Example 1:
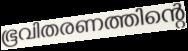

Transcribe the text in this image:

ഭൂവിതരണത്തിന്റെ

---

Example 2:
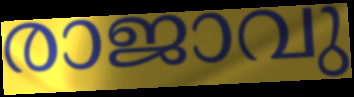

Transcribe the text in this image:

രാജാവു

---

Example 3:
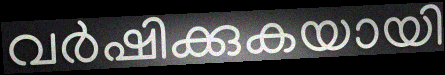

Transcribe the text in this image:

വർഷിക്കുകയായി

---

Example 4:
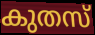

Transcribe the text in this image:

കുതസ്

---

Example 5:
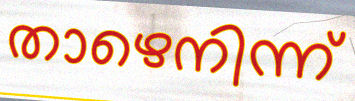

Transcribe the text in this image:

താഴെനിന്ന്